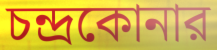
চন্দ্রকোনার